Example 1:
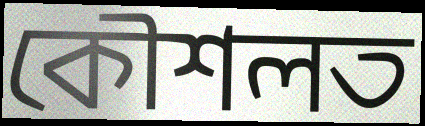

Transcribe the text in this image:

কৌশলত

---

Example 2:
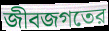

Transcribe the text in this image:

জীবজগতের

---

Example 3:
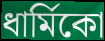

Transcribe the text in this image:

ধার্মিকো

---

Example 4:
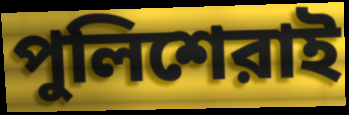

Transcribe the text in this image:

পুলিশেরাই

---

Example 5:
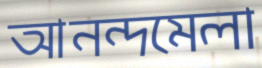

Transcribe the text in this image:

আনন্দমেলা